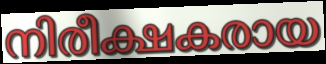
നിരീക്ഷകരായ